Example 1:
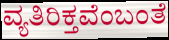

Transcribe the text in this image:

ವ್ಯತಿರಿಕ್ತವೆಂಬಂತೆ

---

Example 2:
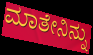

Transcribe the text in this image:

ಮಾತೇನಿನ್ನು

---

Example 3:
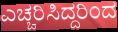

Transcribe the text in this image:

ಎಚ್ಚರಿಸಿದ್ದರಿಂದ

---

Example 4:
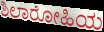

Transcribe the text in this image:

ಶಿಲಾರೋಹಿಯ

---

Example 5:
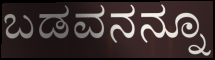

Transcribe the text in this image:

ಬಡವನನ್ನೂ